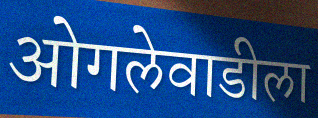
ओगलेवाडीला